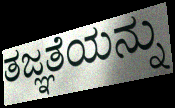
ತಜ್ಞತೆಯನ್ನು